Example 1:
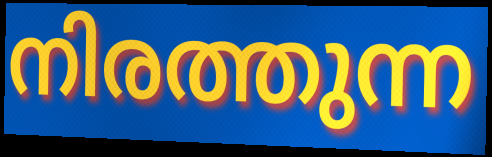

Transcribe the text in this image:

നിരത്തുന്ന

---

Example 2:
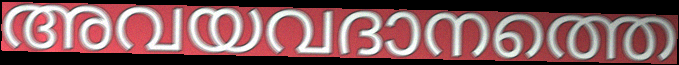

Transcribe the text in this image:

അവയവദാനത്തെ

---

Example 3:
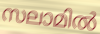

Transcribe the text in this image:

സലാമിൽ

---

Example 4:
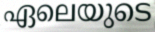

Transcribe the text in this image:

ഏലെയുടെ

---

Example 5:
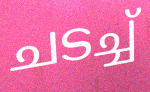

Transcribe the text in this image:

ചടച്ച്